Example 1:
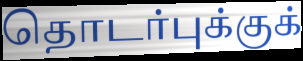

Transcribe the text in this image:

தொடர்புக்குக்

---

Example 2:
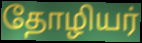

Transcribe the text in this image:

தோழியர்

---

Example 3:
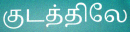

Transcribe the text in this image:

குடத்திலே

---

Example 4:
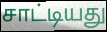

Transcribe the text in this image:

சாட்டியது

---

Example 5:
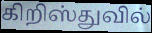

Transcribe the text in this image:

கிறிஸ்துவில்